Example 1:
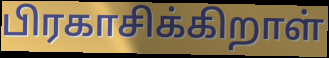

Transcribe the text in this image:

பிரகாசிக்கிறாள்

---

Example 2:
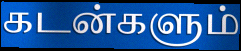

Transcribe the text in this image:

கடன்களும்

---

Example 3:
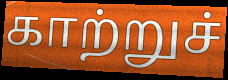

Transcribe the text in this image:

காற்றுச்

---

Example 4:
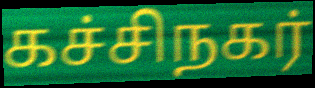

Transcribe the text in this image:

கச்சிநகர்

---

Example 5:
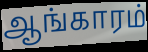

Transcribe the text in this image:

ஆங்காரம்